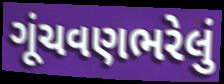
ગૂંચવણભરેલું